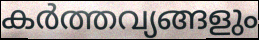
കർത്തവ്യങ്ങളും